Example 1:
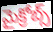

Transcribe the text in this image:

మైక్రోబ్స్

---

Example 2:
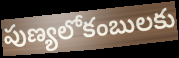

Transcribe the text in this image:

పుణ్యలోకంబులకు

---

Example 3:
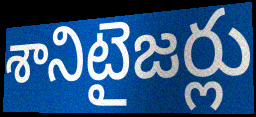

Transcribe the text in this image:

శానిటైజర్లు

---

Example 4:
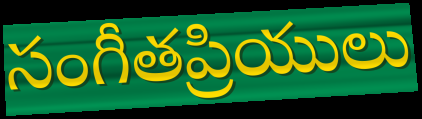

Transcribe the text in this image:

సంగీతప్రియులు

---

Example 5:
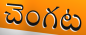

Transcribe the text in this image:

చెంగట